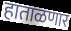
हाताळणार